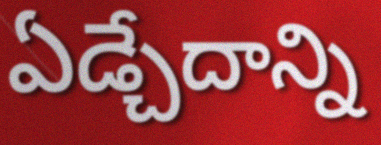
ఏడ్చేదాన్ని